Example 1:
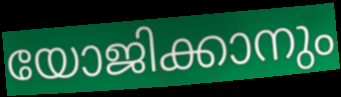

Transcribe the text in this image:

യോജിക്കാനും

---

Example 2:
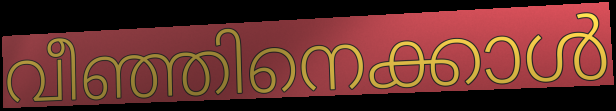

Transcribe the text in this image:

വീഞ്ഞിനെക്കാൾ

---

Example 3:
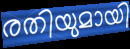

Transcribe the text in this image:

രതിയുമായി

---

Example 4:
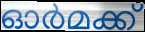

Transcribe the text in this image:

ഓർമക്ക്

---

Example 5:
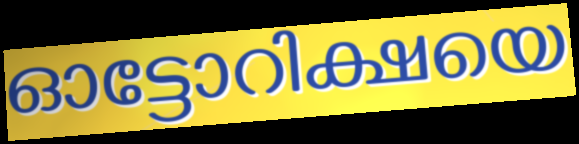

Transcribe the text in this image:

ഓട്ടോറിക്ഷയെ